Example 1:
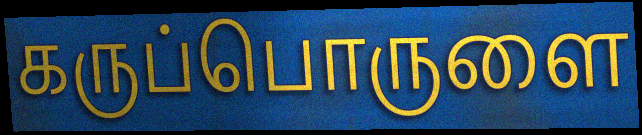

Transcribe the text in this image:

கருப்பொருளை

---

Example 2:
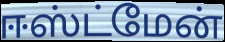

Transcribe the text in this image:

ஈஸ்ட்மேன்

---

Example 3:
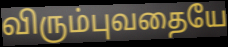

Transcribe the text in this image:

விரும்புவதையே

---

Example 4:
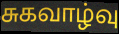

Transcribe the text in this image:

சுகவாழ்வு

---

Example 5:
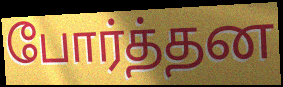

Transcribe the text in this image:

போர்த்தன